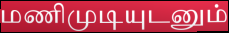
மணிமுடியுடனும்